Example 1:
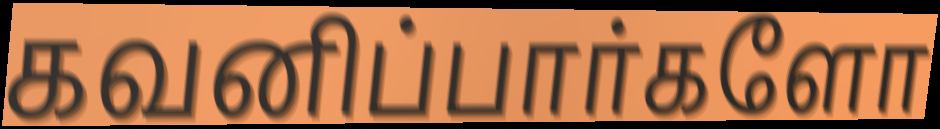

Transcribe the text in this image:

கவனிப்பார்களோ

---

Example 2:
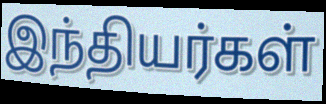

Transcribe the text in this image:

இந்தியர்கள்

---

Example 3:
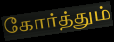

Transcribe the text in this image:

கோர்த்தும்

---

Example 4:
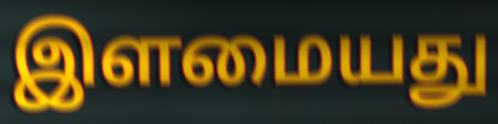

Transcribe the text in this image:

இளமையது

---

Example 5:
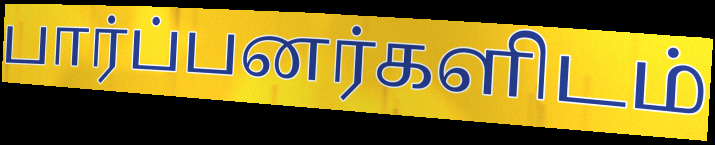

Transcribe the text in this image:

பார்ப்பனர்களிடம்